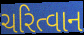
ચરિત્વાન